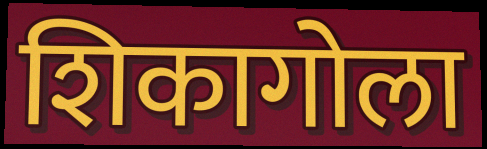
शिकागोला